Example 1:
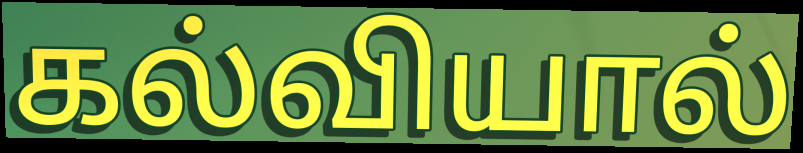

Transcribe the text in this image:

கல்வியால்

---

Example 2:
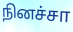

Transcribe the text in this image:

நினச்சா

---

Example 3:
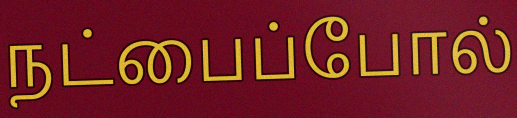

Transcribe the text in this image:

நட்பைப்போல்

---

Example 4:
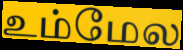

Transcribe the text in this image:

உம்மேல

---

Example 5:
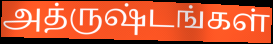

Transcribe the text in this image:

அத்ருஷ்டங்கள்